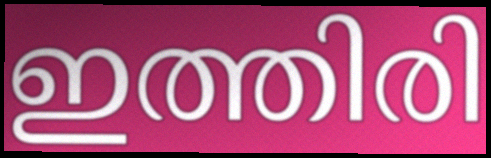
ഇത്തിരി